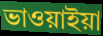
ভাওয়াইয়া